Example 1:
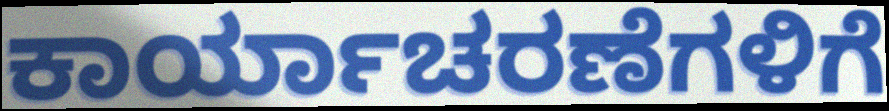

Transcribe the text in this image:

ಕಾರ್ಯಾಚರಣೆಗಳಿಗೆ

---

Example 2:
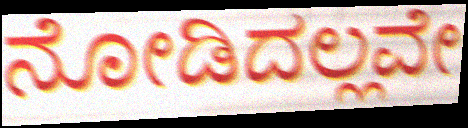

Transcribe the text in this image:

ನೋಡಿದಲ್ಲವೇ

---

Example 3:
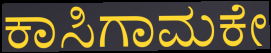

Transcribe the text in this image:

ಕಾಸಿಗಾಮಕೇ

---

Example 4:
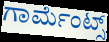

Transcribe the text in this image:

ಗಾರ್ಮೆಂಟ್ಸ್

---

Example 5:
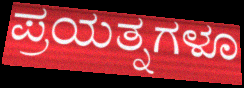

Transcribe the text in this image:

ಪ್ರಯತ್ನಗಳೂ